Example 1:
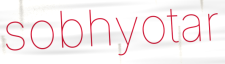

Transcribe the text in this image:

sobhyotar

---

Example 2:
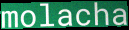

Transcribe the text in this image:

molacha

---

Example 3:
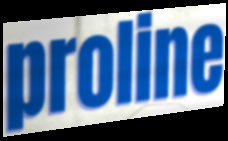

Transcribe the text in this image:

proline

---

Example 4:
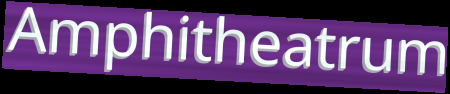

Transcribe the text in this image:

Amphitheatrum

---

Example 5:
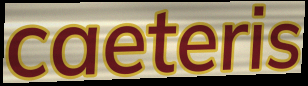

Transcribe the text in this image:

caeteris